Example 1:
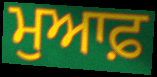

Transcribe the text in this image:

ਮੁਆਫ਼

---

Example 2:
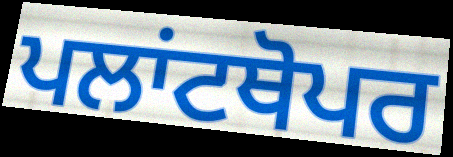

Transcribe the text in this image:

ਪਲਾਂਟਥੋਪਰ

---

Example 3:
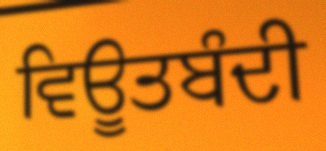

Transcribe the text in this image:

ਵਿਊਤਬੰਦੀ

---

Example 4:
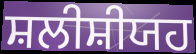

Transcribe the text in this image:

ਸ਼ਲੀਸ਼ੀਯਹ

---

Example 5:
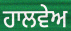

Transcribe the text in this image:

ਹਾਲਵੇਅ